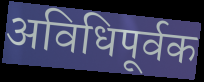
अविधिपूर्वक